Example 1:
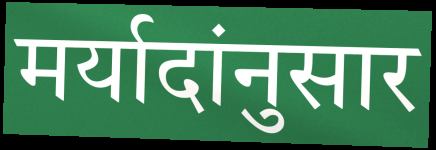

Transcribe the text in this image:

मर्यादांनुसार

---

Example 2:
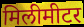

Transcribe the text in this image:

मिलीमीटर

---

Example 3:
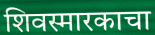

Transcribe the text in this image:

शिवस्मारकाचा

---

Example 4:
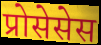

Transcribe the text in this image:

प्रोसेसेस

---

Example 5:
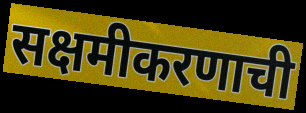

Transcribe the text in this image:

सक्षमीकरणाची